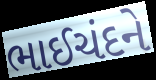
ભાઈચંદને